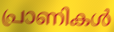
പ്രാണികൾ